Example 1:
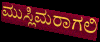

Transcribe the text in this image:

ಮುಸ್ಲಿಮರಾಗಲಿ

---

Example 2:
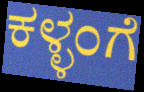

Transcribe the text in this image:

ಕಳ್ಳಂಗೆ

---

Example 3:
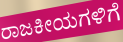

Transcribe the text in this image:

ರಾಜಕೀಯಗಳಿಗೆ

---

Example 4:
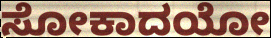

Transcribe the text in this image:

ಸೋಕಾದಯೋ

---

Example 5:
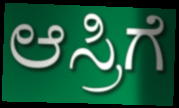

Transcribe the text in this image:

ಆಸ್ರಿಗೆ